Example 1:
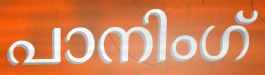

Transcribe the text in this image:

പാനിംഗ്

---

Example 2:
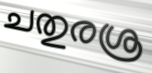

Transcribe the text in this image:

ചതുരശ്ര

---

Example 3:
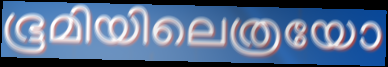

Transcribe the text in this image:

ഭൂമിയിലെത്രയോ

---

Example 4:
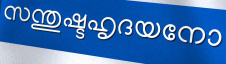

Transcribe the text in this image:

സന്തുഷ്ടഹൃദയനോ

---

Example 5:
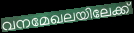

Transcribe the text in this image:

വനമേഖലയിലേക്ക്